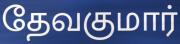
தேவகுமார்